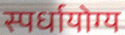
स्पर्धायोग्य